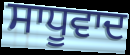
ਸਾਧੂਵਾਦ